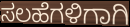
ಸಲಹೆಗಳಿಗಾಗಿ